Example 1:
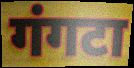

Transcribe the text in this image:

गंगटा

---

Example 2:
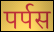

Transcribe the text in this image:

पर्पस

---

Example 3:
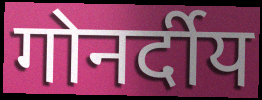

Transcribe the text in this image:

गोनर्दीय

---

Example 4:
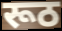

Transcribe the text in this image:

रूठ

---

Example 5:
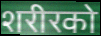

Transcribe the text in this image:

शरीरको